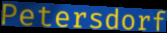
Petersdorf